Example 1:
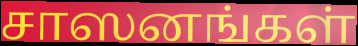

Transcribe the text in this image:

சாஸனங்கள்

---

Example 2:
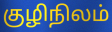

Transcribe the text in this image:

குழிநிலம்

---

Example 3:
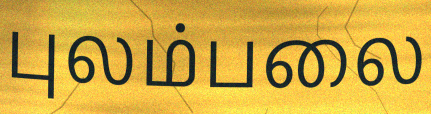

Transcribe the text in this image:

புலம்பலை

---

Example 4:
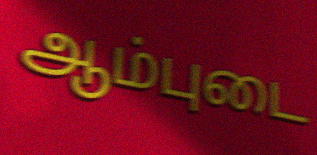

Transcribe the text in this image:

ஆம்புடை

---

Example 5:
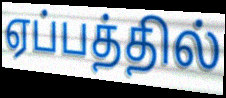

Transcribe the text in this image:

ஏப்பத்தில்